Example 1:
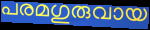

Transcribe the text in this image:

പരമഗുരുവായ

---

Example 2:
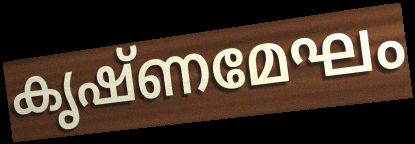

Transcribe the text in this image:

കൃഷ്ണമേഘം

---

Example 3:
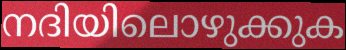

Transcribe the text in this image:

നദിയിലൊഴുക്കുക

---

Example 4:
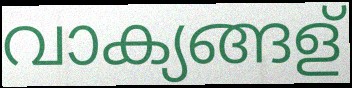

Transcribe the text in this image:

വാക്യങ്ങള്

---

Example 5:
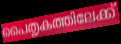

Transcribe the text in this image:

പൈതൃകത്തിലേക്ക്